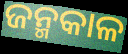
ଜନ୍ମକାଳ